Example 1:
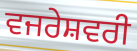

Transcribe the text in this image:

ਵਜਰੇਸ਼ਵਰੀ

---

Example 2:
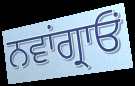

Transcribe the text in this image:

ਨਵਾਂਗ੍ਰਾਓਂ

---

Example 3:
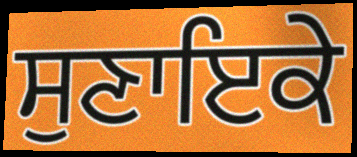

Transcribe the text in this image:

ਸੁਣਾਇਕੇ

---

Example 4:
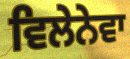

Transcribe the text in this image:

ਵਿਲੇਨੇਵਾ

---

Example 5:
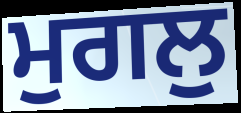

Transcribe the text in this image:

ਮੁਗਲੁ